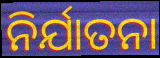
ନିର୍ଯାତନା